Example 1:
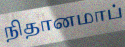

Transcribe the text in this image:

நிதானமாப்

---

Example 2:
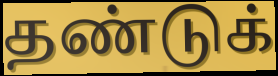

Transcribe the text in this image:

தண்டுக்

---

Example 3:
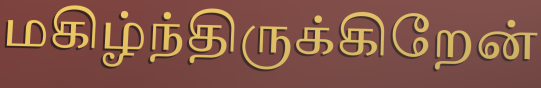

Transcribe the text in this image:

மகிழ்ந்திருக்கிறேன்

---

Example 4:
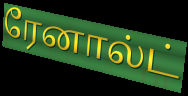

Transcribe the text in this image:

ரேனால்ட்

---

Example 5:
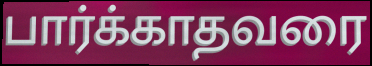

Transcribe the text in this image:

பார்க்காதவரை